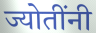
ज्योतींनी